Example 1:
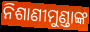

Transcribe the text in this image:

ନିଶାଣୀମୁଣ୍ଡାଙ୍କ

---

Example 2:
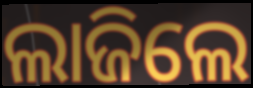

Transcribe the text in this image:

ଲାଜିଲେ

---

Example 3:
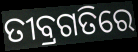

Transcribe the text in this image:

ତୀବ୍ରଗତିରେ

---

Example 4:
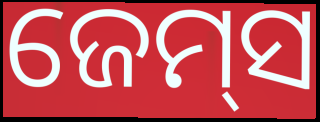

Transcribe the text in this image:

ଜେମ୍‌ସ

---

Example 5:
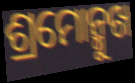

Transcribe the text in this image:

ଶ୍ରମୋନ୍ମୁଖ